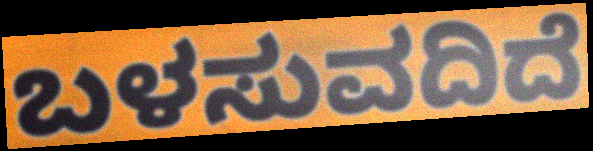
ಬಳಸುವದಿದೆ